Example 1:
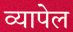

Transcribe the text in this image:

व्यापेल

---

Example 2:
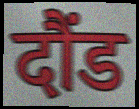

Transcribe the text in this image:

दौंड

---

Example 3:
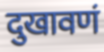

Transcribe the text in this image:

दुखावणं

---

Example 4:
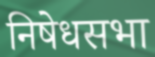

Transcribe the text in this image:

निषेधसभा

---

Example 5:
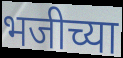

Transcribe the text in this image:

भजीच्या